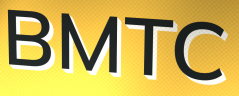
BMTC